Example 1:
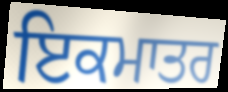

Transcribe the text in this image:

ਇਕਮਾਤਰ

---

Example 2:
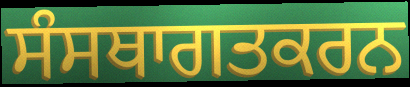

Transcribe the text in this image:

ਸੰਸਥਾਗਤਕਰਨ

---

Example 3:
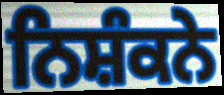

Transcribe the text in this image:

ਨਿਸ਼ੰਕਨੇ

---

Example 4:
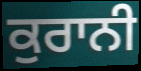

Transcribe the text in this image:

ਕੁਰਾਨੀ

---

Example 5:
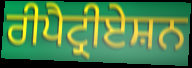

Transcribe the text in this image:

ਰੀਪੈਟ੍ਰੀਏਸ਼ਨ